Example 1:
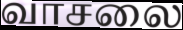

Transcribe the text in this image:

வாசலை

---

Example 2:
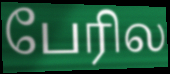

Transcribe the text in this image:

பேரில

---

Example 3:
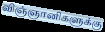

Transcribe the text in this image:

விஞ்ஞானிகளுக்கு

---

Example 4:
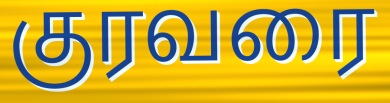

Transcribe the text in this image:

குரவரை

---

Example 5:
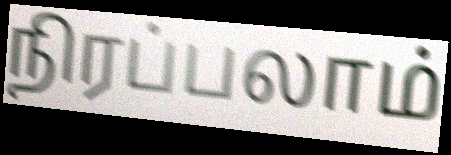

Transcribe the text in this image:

நிரப்பலாம்